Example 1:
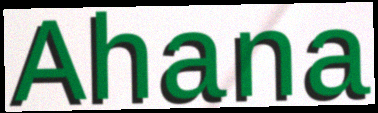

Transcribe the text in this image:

Ahana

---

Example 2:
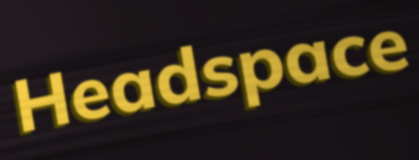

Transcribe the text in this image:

Headspace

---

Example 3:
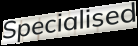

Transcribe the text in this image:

Specialised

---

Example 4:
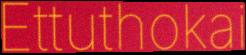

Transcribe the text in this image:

Ettuthokai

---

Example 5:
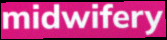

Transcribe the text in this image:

midwifery